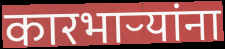
कारभाऱ्यांना